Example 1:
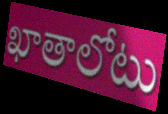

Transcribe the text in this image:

ఖాతాలోటు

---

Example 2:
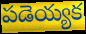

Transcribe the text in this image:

పడెయ్యక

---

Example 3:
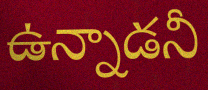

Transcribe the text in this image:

ఉన్నాడనీ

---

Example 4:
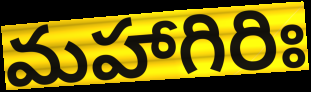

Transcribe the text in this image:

మహాగిరిః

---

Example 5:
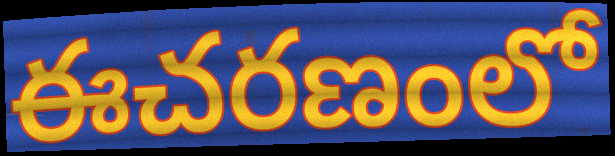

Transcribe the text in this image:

ఈచరణంలో